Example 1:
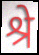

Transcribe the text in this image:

श्रे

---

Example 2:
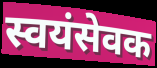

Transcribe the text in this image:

स्वयंसेवक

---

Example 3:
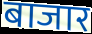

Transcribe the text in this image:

बाजार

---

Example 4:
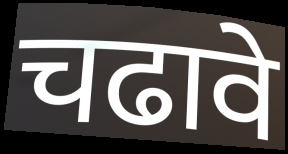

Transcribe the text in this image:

चढावे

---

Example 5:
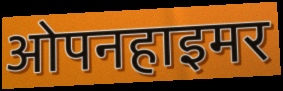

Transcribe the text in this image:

ओपनहाइमर